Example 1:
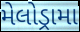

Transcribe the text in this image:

મેલોડ્રામા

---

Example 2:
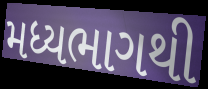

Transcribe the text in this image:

મધ્યભાગથી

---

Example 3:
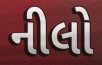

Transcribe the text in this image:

નીલો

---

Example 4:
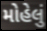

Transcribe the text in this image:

મોહેલું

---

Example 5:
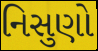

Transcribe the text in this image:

નિસુણો